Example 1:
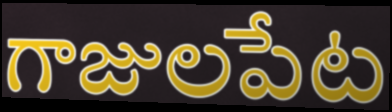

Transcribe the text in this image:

గాజులపేట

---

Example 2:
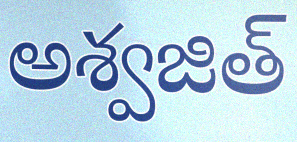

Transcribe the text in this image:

అశ్వజిత్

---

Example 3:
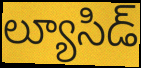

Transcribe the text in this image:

ల్యూసిడ్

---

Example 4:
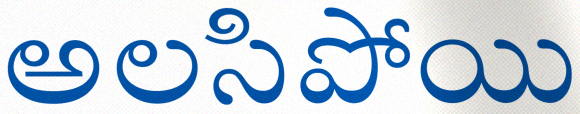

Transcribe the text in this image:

అలసిపోయి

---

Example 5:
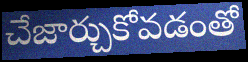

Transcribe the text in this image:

చేజార్చుకోవడంతో